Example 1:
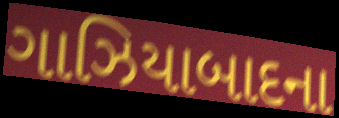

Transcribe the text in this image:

ગાઝિયાબાદના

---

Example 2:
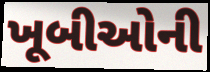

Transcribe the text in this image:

ખૂબીઓની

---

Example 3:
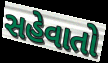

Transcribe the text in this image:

સહેવાતો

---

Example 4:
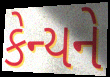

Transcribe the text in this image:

કેન્યને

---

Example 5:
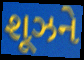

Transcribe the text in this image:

શૂઝને